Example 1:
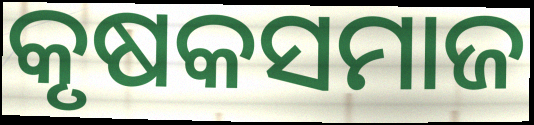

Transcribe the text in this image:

କୃଷକସମାଜ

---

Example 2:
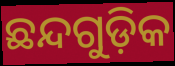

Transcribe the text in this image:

ଛନ୍ଦଗୁଡ଼ିକ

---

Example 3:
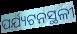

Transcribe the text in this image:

ପର୍ଯ୍ୟଟନସ୍ଥଳୀ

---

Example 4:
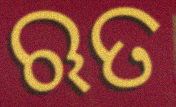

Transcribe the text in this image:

ଋତ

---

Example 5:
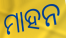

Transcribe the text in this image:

ମାହନ